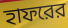
হাফরের